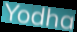
Yodha